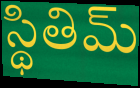
స్థితిమ్